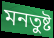
মনতুষ্ট